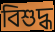
বিশুদ্ধ